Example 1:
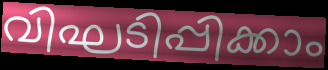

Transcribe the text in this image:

വിഘടിപ്പിക്കാം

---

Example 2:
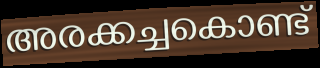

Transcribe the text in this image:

അരക്കച്ചകൊണ്ട്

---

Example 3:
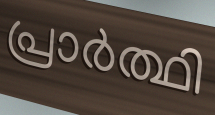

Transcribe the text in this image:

പ്രാർത്ഥി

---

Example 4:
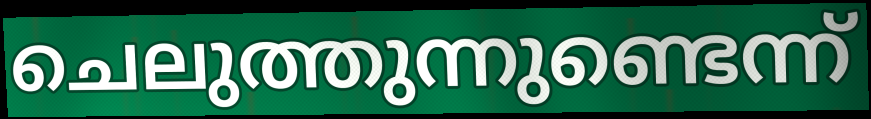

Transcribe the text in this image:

ചെലുത്തുന്നുണ്ടെന്ന്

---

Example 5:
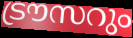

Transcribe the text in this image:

ട്രൗസറും